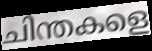
ചിന്തകളെ